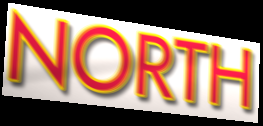
NORTH